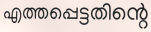
എത്തപ്പെട്ടതിന്റെ